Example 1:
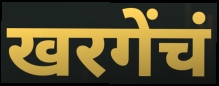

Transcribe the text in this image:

खरगेंचं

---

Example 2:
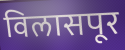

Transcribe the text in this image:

विलासपूर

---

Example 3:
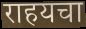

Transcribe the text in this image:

राहयचा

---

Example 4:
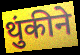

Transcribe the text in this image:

थुंकीने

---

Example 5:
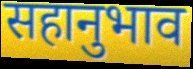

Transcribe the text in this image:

सहानुभाव